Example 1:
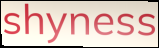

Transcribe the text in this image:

shyness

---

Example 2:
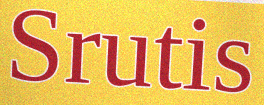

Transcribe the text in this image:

Srutis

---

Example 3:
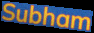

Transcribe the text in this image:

Subham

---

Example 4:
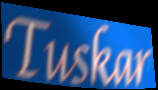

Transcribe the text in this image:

Tuskar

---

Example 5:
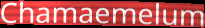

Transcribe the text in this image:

Chamaemelum